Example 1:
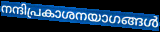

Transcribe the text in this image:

നന്ദിപ്രകാശനയാഗങ്ങൾ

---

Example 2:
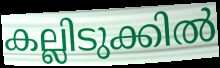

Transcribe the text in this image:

കല്ലിടുക്കിൽ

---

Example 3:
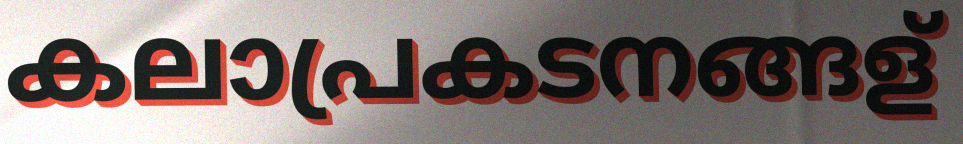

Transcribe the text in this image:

കലാപ്രകടനങ്ങള്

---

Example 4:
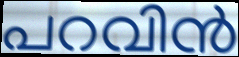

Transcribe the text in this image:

പറവിൻ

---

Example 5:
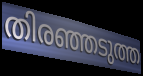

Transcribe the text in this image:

തിരഞ്ഞടുത്ത